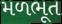
મળભૂત